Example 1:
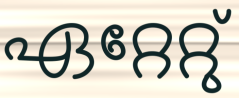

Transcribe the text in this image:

ഏറ്റേറ്റു്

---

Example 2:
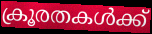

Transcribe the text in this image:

ക്രൂരതകൾക്ക്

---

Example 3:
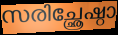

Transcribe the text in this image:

സരിച്ഛ്രേഷ്ഠാ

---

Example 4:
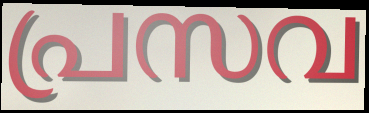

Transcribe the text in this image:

പ്രസവ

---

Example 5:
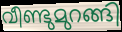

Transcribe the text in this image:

വീണ്ടുമുറങ്ങി